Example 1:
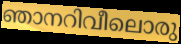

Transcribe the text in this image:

ഞാനറിവീലൊരു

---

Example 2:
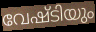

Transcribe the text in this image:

വേഷ്ടിയും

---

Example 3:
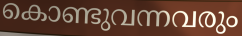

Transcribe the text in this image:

കൊണ്ടുവന്നവരും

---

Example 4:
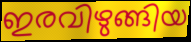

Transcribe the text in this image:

ഇരവിഴുങ്ങിയ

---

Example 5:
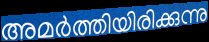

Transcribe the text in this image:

അമർത്തിയിരിക്കുന്നു